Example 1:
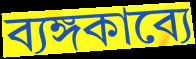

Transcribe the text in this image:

ব্যঙ্গকাব্যে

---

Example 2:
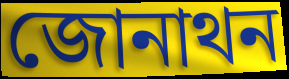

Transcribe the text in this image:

জোনাথন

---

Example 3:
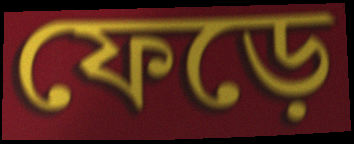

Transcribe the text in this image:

ফেড়ে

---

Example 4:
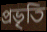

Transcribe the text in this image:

প্রভৃতি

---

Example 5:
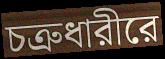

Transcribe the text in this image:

চত্রুধারীরে